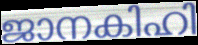
ജാനകിഹി